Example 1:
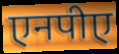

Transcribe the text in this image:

एनपीए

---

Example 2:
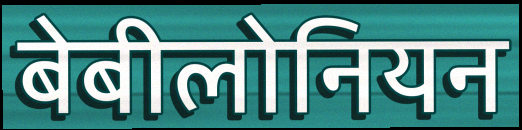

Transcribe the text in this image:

बेबीलोनियन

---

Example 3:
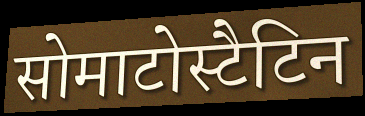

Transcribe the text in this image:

सोमाटोस्टैटिन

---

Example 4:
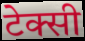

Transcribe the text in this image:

टेक्‍सी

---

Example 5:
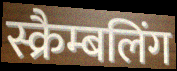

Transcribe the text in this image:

स्क्रैम्बलिंग